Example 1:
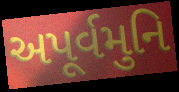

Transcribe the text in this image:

અપૂર્વમુનિ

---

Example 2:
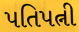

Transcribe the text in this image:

પતિપત્ની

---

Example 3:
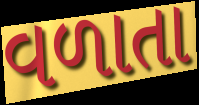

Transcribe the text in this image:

વળાતા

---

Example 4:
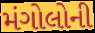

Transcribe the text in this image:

મંગોલોની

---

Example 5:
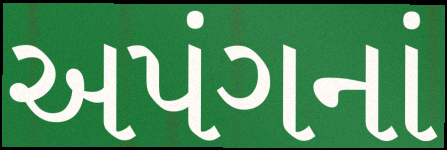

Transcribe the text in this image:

અપંગનાં